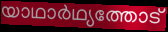
യാഥാർഥ്യത്തോട്